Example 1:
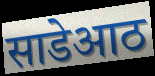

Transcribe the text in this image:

साडेआठ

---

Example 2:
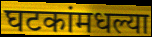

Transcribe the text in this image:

घटकांमधल्या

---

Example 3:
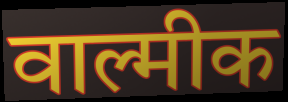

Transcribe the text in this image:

वाल्मीक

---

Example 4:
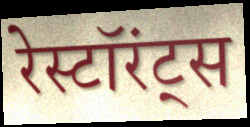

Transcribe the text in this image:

रेस्टॉरंट्‌स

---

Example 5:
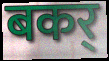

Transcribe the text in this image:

बकर्